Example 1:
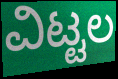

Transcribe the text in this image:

ವಿಟ್ಟಲ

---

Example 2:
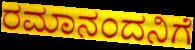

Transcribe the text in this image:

ರಮಾನಂದನಿಗೆ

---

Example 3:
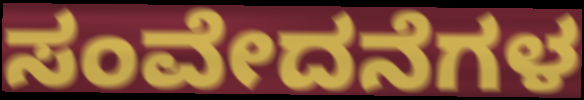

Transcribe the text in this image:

ಸಂವೇದನೆಗಳ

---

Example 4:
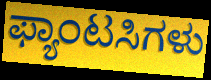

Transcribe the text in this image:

ಫ್ಯಾಂಟಸಿಗಳು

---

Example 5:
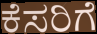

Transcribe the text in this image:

ಕೆಸರಿಗೆ